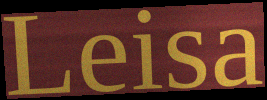
Leisa